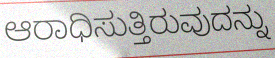
ಆರಾಧಿಸುತ್ತಿರುವುದನ್ನು